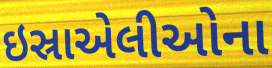
ઇસ્રાએલીઓના